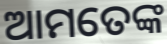
ଆମତେଙ୍କ